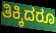
ತಿಕ್ಕಿದರೂ